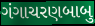
ગંગાચરણબાબુ